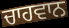
ਚਾਹਵਾਨ